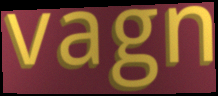
vagn